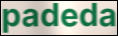
padeda